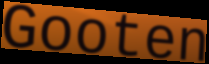
Gooten